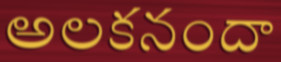
అలకనందా